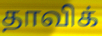
தாவிக்